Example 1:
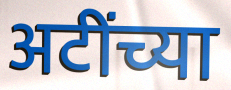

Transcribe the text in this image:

अटींच्या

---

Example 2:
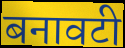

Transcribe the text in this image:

बनावटी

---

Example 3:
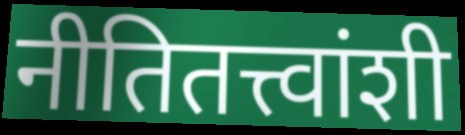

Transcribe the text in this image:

नीतितत्त्वांशी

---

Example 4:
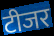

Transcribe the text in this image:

टीजर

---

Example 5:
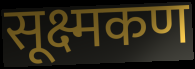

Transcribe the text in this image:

सूक्ष्मकण